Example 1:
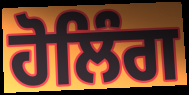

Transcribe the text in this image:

ਹੋਲਿੰਗ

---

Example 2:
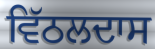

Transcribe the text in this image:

ਵਿੱਠਲਦਾਸ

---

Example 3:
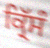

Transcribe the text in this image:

ਕ੍ਰਿੱਸੰ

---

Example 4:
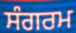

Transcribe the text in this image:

ਸੰਗਰਮ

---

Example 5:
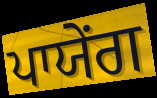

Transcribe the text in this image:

ਪਾਯੇਂਗ